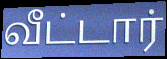
வீட்டார்